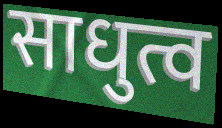
साधुत्व